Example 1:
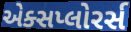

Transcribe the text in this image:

એક્સપ્લોરર્સ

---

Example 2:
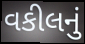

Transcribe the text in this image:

વકીલનું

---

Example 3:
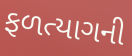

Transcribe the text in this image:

ફળત્યાગની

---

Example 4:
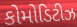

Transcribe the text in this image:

કોમોડિટીઝ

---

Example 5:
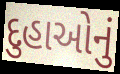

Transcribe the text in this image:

દુહાઓનું